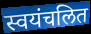
स्वयंचलित